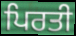
ਪਿਰਤੀ